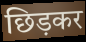
छिड़कर